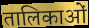
तालिकाओं